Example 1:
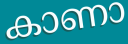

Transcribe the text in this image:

കാണാ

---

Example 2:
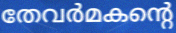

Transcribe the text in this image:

തേവർമകന്റെ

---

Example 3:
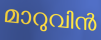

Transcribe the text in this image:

മാറുവിൻ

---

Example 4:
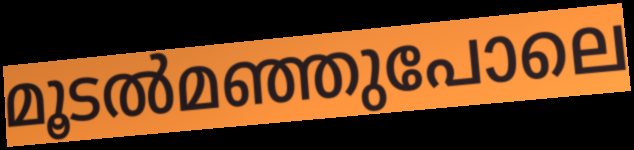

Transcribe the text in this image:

മൂടൽമഞ്ഞുപോലെ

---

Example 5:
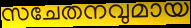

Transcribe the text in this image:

സചേതനവുമായ